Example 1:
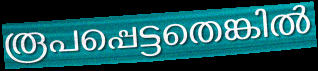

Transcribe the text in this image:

രൂപപ്പെട്ടതെങ്കിൽ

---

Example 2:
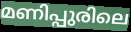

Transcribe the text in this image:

മണിപ്പുരിലെ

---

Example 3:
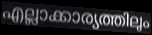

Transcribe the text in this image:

എല്ലാക്കാര്യത്തിലും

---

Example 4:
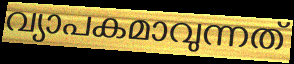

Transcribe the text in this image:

വ്യാപകമാവുന്നത്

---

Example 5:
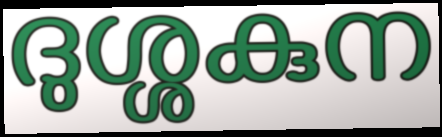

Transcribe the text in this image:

ദുശ്ശകുന